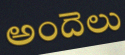
అందెలు